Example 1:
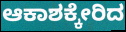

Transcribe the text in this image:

ಆಕಾಶಕ್ಕೇರಿದ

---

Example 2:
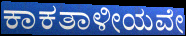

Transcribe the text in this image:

ಕಾಕತಾಳೀಯವೇ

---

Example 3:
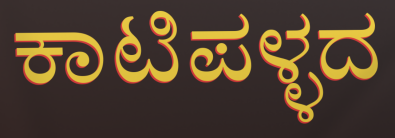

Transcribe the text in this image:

ಕಾಟಿಪಳ್ಳದ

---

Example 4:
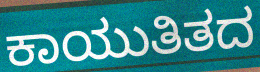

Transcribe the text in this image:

ಕಾಯುತಿತದ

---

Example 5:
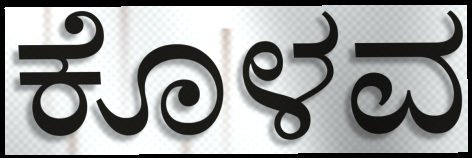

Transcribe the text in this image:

ಕೊಳವ